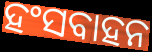
ହଂସବାହନ